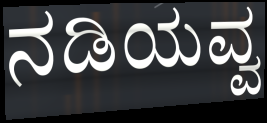
ನಡಿಯವ್ವ